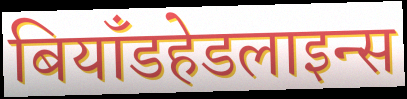
बियॉंडहेडलाइन्स